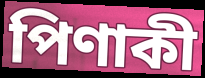
পিণাকী